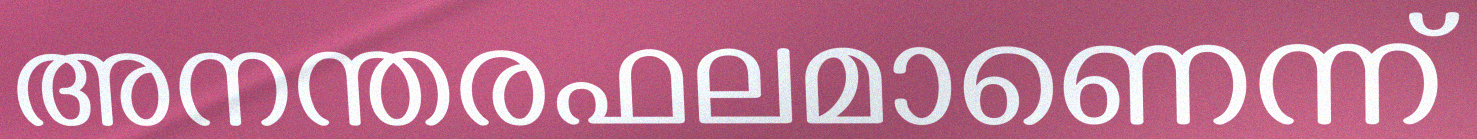
അനന്തരഫലമാണെന്ന്